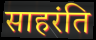
साहरंति